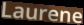
Laurene